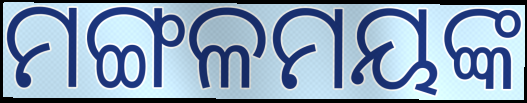
ମଙ୍ଗଳମୟଙ୍କ